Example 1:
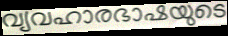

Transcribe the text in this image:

വ്യവഹാരഭാഷയുടെ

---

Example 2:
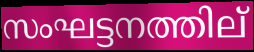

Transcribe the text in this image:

സംഘട്ടനത്തില്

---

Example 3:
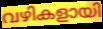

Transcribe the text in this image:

വഴികളായി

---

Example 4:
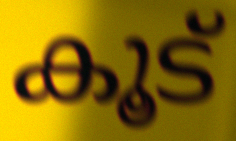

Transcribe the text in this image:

കൂട്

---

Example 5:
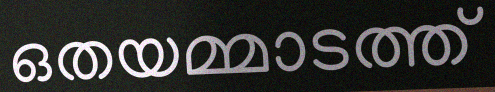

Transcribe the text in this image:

ഒതയമ്മാടത്ത്